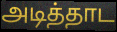
அடித்தாட